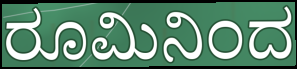
ರೂಮಿನಿಂದ